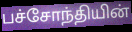
பச்சோந்தியின்